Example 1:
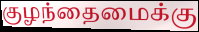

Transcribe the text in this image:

குழந்தைமைக்கு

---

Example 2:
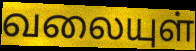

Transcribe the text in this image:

வலையுள்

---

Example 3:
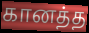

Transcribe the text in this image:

கானத்த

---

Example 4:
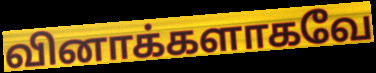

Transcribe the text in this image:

வினாக்களாகவே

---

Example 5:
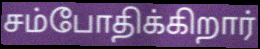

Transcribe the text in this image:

சம்போதிக்கிறார்